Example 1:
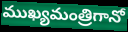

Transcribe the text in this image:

ముఖ్యమంత్రిగానో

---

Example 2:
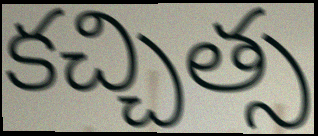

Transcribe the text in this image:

కచ్చిత్స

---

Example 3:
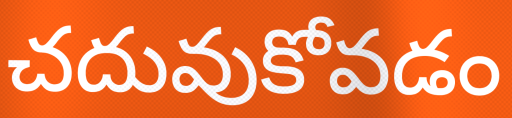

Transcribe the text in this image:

చదువుకోవడం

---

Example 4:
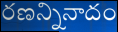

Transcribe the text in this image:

రణన్నినాదం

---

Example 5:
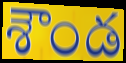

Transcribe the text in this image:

శౌండ